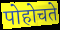
पोहोचते